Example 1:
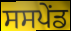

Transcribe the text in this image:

ਸਸਪੇੰਡ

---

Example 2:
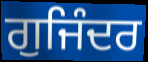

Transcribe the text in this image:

ਗੁਜਿੰਦਰ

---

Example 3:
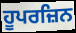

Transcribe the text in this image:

ਹੂਪਰਜ਼ਿਨ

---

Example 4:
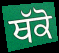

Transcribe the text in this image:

ਥੱਕੋ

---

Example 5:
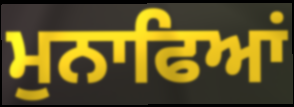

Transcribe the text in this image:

ਮੁਨਾਫਿਆਂ